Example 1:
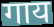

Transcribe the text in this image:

गाय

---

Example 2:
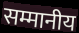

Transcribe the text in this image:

सम्मानीय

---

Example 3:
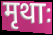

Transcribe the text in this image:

मृथाः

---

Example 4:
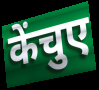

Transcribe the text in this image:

केंचुए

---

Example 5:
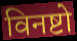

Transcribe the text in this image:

विनष्टो